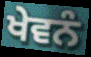
ਖੇਵਨੰ